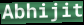
Abhijit